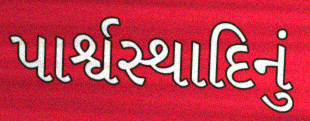
પાર્શ્વસ્થાદિનું